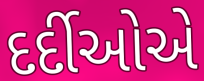
દર્દીઓએ